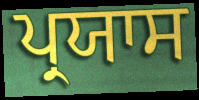
ਪ੍ਰਯਾਸ